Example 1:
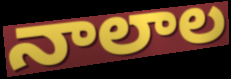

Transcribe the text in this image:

నాలాల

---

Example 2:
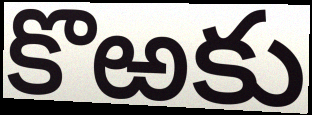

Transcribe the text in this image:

కొఱకు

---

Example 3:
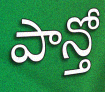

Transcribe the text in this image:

పాన్తో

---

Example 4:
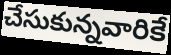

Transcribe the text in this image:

చేసుకున్నవారికే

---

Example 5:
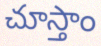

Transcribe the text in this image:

చూస్తాం